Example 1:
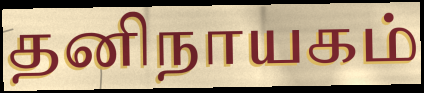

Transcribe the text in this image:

தனிநாயகம்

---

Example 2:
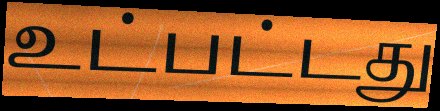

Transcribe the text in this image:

உட்பட்டது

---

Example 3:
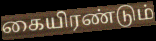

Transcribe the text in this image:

கையிரண்டும்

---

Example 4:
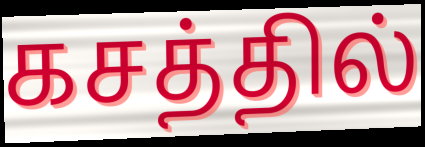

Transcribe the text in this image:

கசத்தில்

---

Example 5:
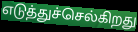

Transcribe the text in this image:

எடுத்துச்செல்கிறது